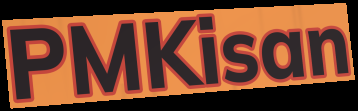
PMKisan